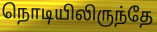
நொடியிலிருந்தே